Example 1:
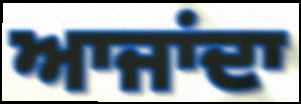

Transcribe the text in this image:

ਆਜਾਂਦਾ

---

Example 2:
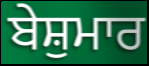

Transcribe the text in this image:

ਬੇਸ਼ੁਮਾਰ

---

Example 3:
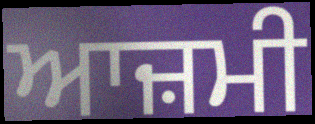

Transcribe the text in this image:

ਆਜ਼ਮੀ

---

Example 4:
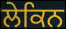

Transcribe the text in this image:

ਲੇਕਿਨ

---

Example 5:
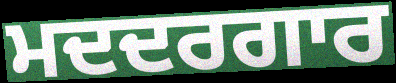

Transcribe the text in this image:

ਮਦਦਰਗਾਰ